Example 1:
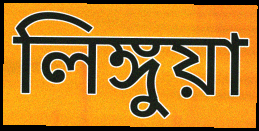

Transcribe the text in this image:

লিঙ্গুয়া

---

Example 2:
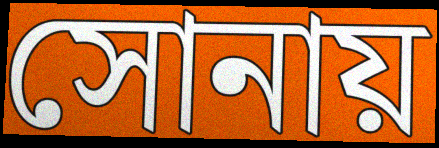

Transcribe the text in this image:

সোনায়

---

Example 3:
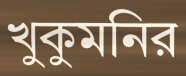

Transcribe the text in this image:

খুকুমনির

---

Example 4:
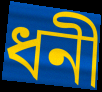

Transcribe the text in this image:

ধনী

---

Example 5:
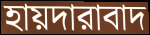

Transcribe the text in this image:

হায়দারাবাদ